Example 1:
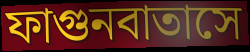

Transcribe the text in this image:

ফাগুনবাতাসে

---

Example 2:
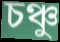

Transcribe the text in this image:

চঞ্চু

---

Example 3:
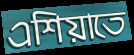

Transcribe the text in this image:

এশিয়াতে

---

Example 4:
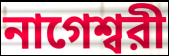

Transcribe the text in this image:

নাগেশ্বরী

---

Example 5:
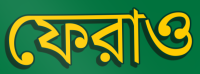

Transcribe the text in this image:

ফেরাও